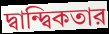
দ্বান্দ্বিকতার